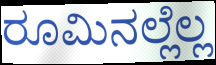
ರೂಮಿನಲ್ಲೆಲ್ಲ